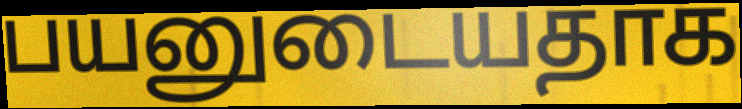
பயனுடையதாக